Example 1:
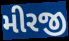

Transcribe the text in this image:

મીરજી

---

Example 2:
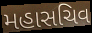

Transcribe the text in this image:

મહાસચિવ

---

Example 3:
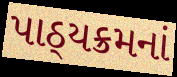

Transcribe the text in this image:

પાઠ્યક્રમનાં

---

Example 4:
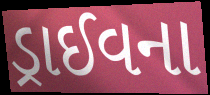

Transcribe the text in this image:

ડ્રાઈવના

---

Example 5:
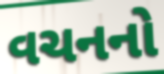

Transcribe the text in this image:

વચનનો